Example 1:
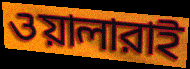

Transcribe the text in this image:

ওয়ালারাই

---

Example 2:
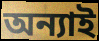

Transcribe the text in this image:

অন্যাই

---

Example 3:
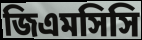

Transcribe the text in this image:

জিএমসিসি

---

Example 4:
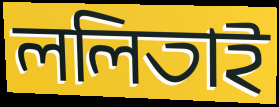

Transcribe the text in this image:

ললিতাই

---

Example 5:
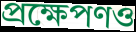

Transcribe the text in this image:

প্রক্ষেপণও